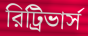
রিট্রিভার্স